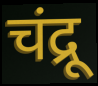
चंद्रू